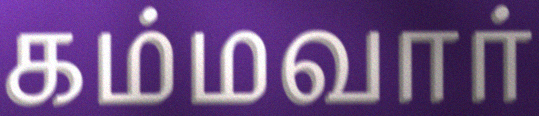
கம்மவார்